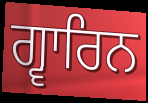
ਗ੍ਵਾਰਿਨ